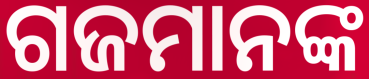
ଗଜମାନଙ୍କ